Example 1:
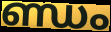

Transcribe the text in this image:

ണ്ഡം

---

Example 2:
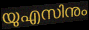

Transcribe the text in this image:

യുഎസിനും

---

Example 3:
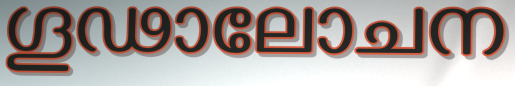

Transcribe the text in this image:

ഗൂഢാലോചന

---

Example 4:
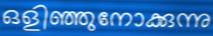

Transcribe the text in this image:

ഒളിഞ്ഞുനോക്കുന്നു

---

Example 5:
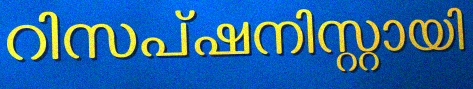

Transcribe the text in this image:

റിസപ്ഷനിസ്റ്റായി